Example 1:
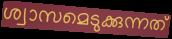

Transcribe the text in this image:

ശ്വാസമെടുക്കുന്നത്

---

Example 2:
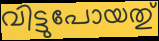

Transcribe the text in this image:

വിട്ടുപോയതു്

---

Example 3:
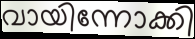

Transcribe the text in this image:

വായിന്നോക്കി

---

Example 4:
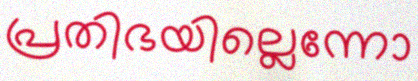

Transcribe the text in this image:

പ്രതിഭയില്ലെന്നോ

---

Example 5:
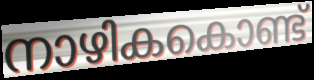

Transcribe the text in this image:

നാഴികകൊണ്ട്